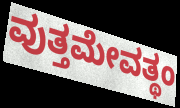
ವುತ್ತಮೇವತ್ಥಂ